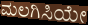
ಮಲಗಿಸಿಯೇ